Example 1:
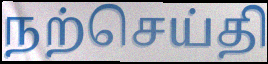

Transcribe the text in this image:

நற்செய்தி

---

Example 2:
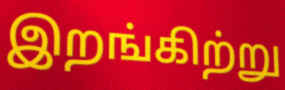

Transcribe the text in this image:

இறங்கிற்று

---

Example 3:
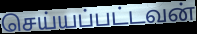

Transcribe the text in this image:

செய்யப்பட்டவன்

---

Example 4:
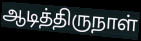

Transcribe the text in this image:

ஆடித்திருநாள்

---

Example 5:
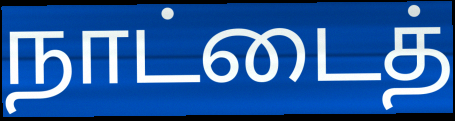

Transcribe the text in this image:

நாட்டைத்